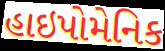
હાઇપોમેનિક